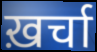
ख़र्चा